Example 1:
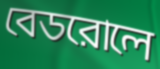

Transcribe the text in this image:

বেডরোলে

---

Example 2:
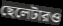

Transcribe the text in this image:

ছেলেটারও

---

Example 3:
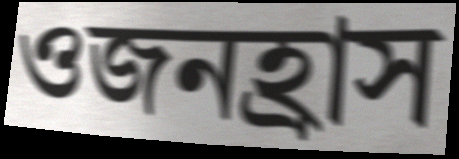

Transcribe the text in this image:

ওজনহ্রাস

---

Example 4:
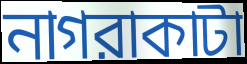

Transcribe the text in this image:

নাগরাকাটা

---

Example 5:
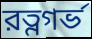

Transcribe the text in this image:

রত্নগর্ভ